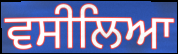
ਵਸੀਲਿਆ